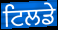
ਟਿਲਡੇ